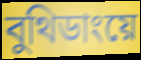
বুথিডাংয়ে